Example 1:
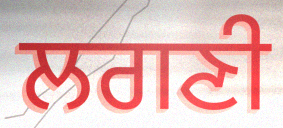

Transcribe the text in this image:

ਲਗਣੀ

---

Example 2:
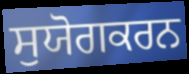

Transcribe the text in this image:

ਸੁਯੋਗਕਰਨ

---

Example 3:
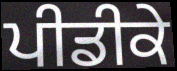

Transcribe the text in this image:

ਪੀਡੀਕੇ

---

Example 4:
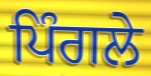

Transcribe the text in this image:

ਪਿੰਗਲੇ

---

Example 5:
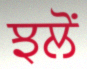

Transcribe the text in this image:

ਝਲੋਂ